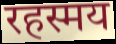
रहस्मय